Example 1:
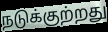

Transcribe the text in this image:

நடுக்குற்றது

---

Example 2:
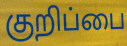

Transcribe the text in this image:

குறிப்பை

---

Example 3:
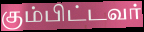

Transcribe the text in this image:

கும்பிட்டவர்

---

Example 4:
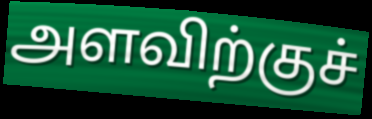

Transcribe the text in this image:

அளவிற்குச்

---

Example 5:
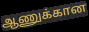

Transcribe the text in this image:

ஆணுக்கான